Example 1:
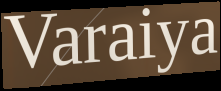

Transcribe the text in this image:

Varaiya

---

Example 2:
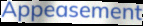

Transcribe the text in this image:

Appeasement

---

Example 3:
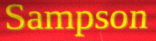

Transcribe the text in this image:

Sampson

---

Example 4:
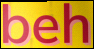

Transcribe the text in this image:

beh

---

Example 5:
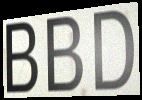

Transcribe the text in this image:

BBD